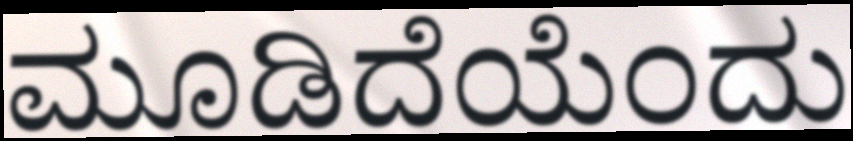
ಮೂಡಿದೆಯೆಂದು